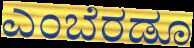
ಎಂಬೆರಡೂ